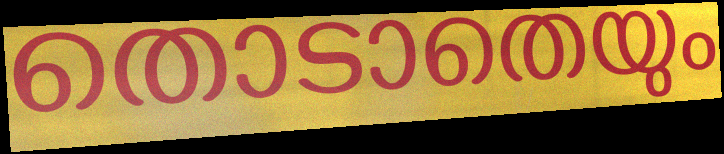
തൊടാതെയും